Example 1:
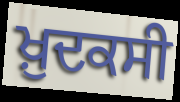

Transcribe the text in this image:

ਖ਼ੁਦਕਸੀ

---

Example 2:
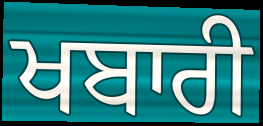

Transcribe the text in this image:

ਖਬਾਰੀ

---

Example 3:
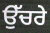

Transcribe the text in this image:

ਉੱਚਰੇ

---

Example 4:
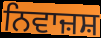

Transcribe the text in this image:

ਨਿਵਾਜ਼ਸ਼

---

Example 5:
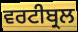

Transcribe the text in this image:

ਵਰਟੀਬ੍ਰਲ